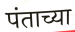
पंताच्या